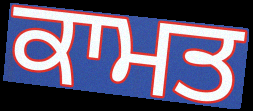
ਕਾਮਤ